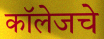
कॉलेजचे